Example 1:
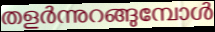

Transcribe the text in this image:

തളർന്നുറങ്ങുമ്പോൾ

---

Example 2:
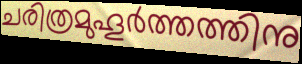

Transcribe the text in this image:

ചരിത്രമുഹൂർത്തത്തിനു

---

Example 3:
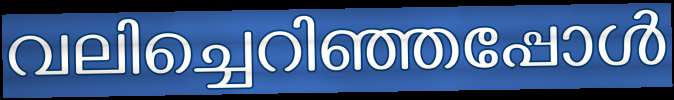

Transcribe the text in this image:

വലിച്ചെറിഞ്ഞപ്പോൾ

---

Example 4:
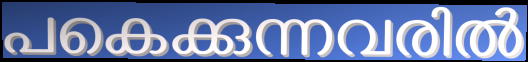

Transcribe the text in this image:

പകെക്കുന്നവരിൽ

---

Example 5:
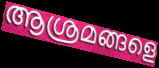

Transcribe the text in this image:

ആശ്രമങ്ങളെ